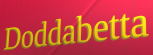
Doddabetta